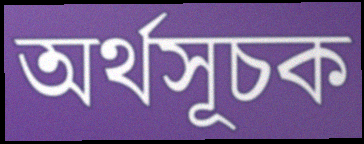
অর্থসূচক